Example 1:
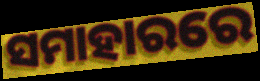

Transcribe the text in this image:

ସମାହାରରେ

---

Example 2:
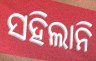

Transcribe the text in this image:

ସହିଲାନି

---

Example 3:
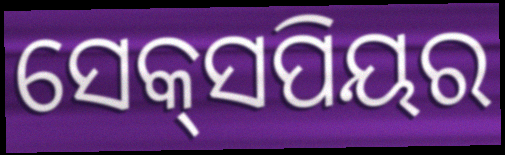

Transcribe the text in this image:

ସେକ୍‌ସପିୟର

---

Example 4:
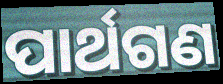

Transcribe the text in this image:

ପାର୍ଥଗଣ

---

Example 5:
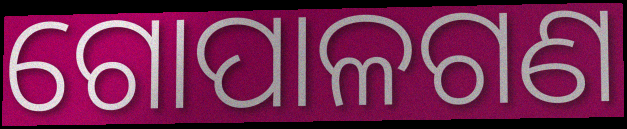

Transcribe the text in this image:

ଗୋପାଳଗଣ